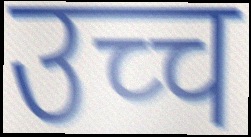
उच्च